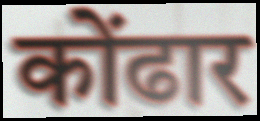
कोंढार